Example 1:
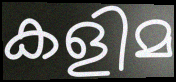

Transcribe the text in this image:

കളിമ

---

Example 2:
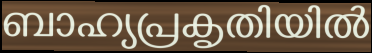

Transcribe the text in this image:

ബാഹ്യപ്രകൃതിയിൽ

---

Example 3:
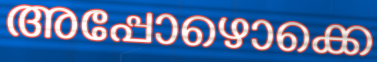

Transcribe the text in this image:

അപ്പോഴൊക്കെ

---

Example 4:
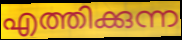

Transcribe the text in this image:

എത്തിക്കുന്ന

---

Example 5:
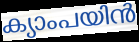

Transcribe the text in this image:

ക്യാംപയിൻ